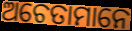
ଅଚେତାମାନେ